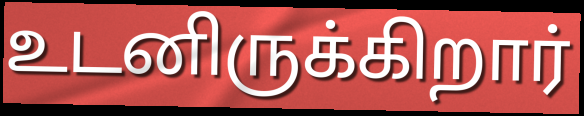
உடனிருக்கிறார்